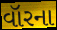
વૉરના